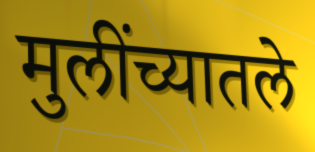
मुलींच्यातले